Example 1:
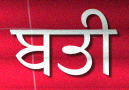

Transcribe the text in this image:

ਬਤੀ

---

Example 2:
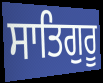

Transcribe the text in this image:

ਸਾਤਿਗੁਰੂ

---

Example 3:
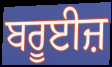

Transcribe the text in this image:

ਬਰੂਈਜ਼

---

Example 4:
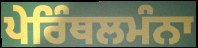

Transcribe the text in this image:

ਪੇਰਿੰਥਲਮੰਨਾ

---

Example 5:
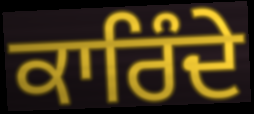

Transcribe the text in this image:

ਕਾਰਿੰਦੇ